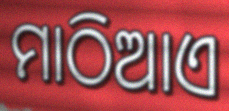
ମାଠିଆଏ